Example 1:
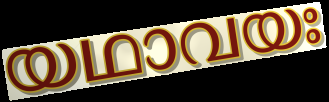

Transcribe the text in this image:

യഥാവയഃ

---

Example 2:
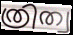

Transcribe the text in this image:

ത്രിത്വ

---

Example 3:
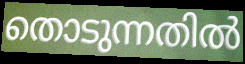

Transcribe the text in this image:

തൊടുന്നതിൽ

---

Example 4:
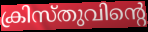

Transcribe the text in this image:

ക്രിസ്തുവിന്റെ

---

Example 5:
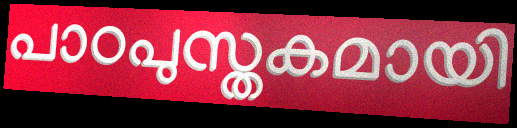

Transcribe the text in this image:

പാഠപുസ്തകമായി